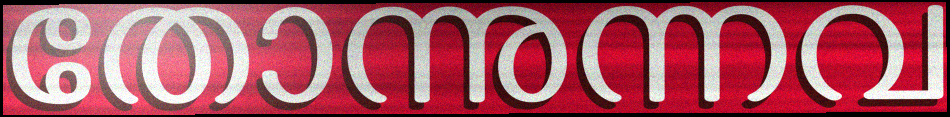
തോന്നുന്നവ